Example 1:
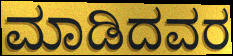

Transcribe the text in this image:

ಮಾಡಿದವರ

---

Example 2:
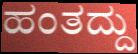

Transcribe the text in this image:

ಹಂತದ್ದು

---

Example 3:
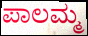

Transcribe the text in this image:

ಪಾಲಮ್ಮ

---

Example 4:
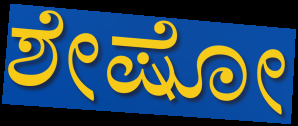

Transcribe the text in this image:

ಶೇಷೋ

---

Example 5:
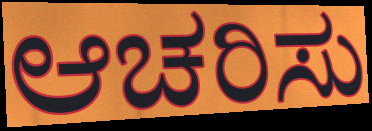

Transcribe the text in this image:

ಆಚರಿಸು